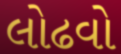
લોઢવો